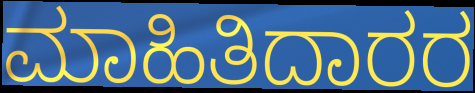
ಮಾಹಿತಿದಾರರ